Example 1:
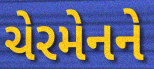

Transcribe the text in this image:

ચેરમેનને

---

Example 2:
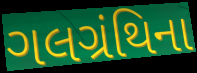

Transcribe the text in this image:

ગલગ્રંથિના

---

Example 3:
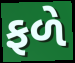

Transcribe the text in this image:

ફળે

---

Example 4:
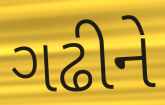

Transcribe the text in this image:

ગઢીને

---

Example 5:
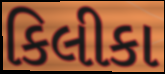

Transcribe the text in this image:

કિલીકા